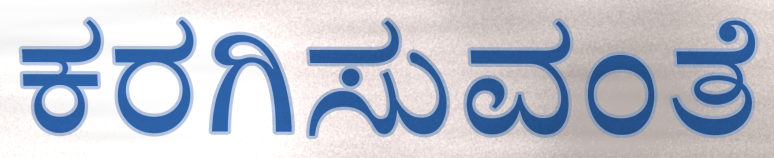
ಕರಗಿಸುವಂತೆ